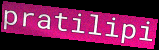
pratilipi